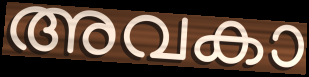
അവകാ